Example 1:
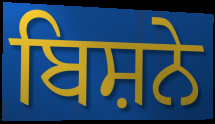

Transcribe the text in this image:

ਬਿਸ਼ਨੇ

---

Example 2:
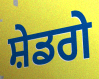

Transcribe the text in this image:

ਸ਼ੇਡਗੇ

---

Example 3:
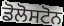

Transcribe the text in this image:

ਡੋਲੋਸਟੋਨ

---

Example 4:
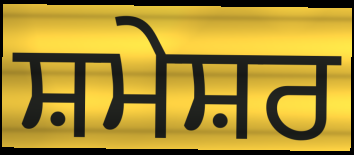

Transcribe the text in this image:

ਸ਼ਮੇਸ਼ਰ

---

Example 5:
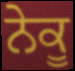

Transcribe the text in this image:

ਨੇਕੂ